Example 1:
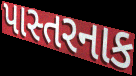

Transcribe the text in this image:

પાસ્તરનાક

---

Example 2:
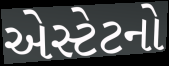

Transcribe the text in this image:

એસ્ટેટનો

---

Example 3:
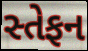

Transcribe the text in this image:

સ્તેફન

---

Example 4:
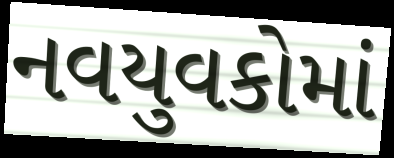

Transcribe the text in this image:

નવયુવકોમાં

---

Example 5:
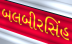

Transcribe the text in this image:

બલબીરસિંહ